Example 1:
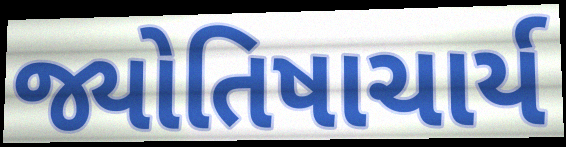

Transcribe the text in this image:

જ્યોતિષાચાર્ય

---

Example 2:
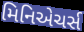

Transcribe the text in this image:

મિનિએચર્સ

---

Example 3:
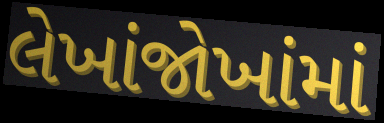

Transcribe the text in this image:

લેખાંજોખાંમાં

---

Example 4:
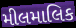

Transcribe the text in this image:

મીલમાલિક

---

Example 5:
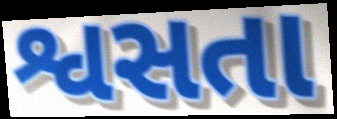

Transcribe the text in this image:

શ્વસતા